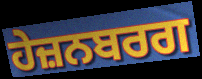
ਹੇਜ਼ਨਬਰਗ